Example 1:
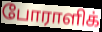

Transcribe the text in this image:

போராளிக்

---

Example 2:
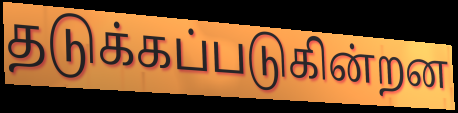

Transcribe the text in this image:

தடுக்கப்படுகின்றன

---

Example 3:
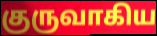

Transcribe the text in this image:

குருவாகிய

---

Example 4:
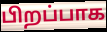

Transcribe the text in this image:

பிறப்பாக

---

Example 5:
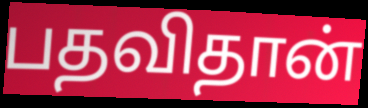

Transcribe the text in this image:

பதவிதான்